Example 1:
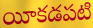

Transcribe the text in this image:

యీకడపటి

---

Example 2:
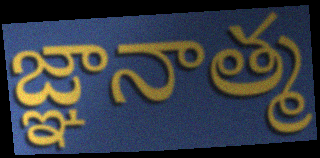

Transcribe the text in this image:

జ్ఞానాత్మ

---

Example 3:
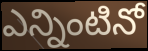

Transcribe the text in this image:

ఎన్నింటినో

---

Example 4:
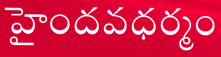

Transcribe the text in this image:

హైందవధర్మం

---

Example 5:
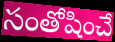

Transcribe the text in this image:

సంతోషించే